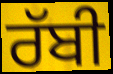
ਰੱਬੀ